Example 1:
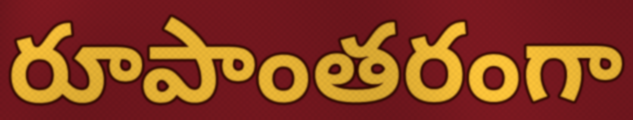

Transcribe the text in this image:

రూపాంతరంగా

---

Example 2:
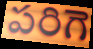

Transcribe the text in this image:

పరిగె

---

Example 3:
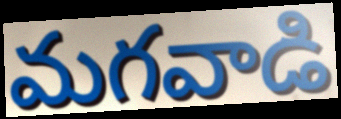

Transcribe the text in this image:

మగవాడి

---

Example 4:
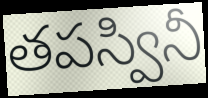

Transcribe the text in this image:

తపస్వినీ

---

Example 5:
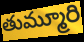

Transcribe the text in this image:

తుమ్మూరి